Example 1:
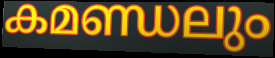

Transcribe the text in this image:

കമണ്ഡലും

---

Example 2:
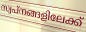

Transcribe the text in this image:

സ്വപ്നങ്ങളിലേക്ക്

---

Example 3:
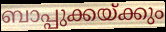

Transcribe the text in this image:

ബാപ്പുക്കയ്ക്കും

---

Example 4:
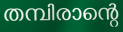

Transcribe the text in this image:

തമ്പിരാന്റെ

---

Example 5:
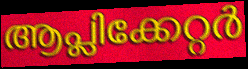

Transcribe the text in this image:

ആപ്ലിക്കേറ്റർ